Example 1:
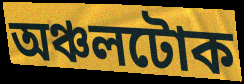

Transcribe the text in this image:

অঞ্চলটোক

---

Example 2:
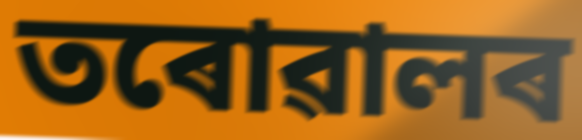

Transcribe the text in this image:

তৰোৱালৰ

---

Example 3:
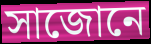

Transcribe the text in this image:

সাজোনে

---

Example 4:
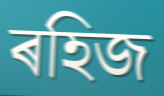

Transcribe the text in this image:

ৰহিজ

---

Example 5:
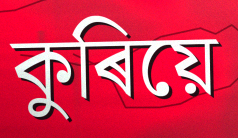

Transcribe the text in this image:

কুৰিয়ে